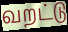
வறட்டு